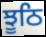
ਝੂਠਿ